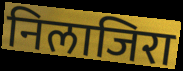
निलाजिरा